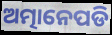
ଅତ୍ମାନେପଡି